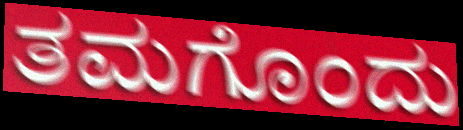
ತಮಗೊಂದು